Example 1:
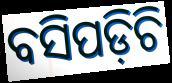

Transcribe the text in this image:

ବସିପଡ଼ିଚି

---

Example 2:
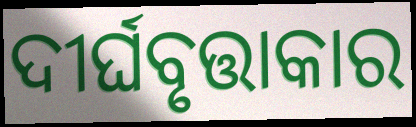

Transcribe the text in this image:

ଦୀର୍ଘବୃତ୍ତାକାର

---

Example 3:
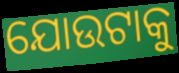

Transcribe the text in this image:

ଯୋଉଟାକୁ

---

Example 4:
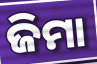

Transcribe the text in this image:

ଜିମା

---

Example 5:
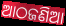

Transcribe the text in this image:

ଆଠଜଣିଆ